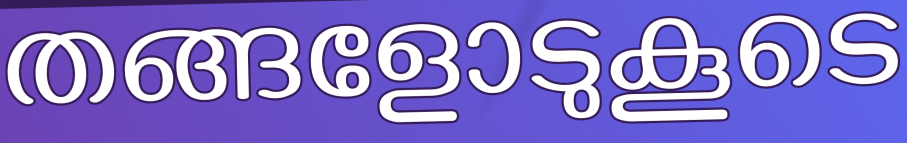
തങ്ങളോടുകൂടെ